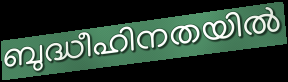
ബുദ്ധീഹിനതയിൽ